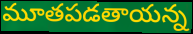
మూతపడతాయన్న